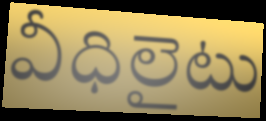
వీధిలైటు